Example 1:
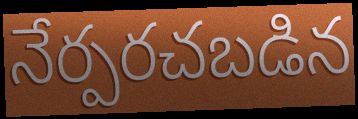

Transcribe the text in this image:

నేర్పరచబడిన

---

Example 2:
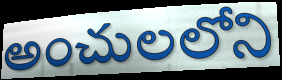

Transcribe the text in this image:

అంచులలోని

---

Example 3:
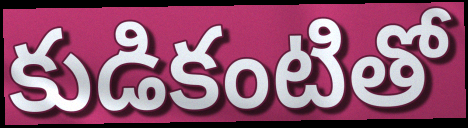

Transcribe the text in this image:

కుడికంటితో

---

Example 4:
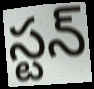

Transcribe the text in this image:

స్టన్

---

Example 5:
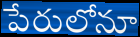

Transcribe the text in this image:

పేరులోనూ